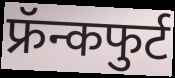
फ्रॅन्कफुर्ट